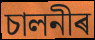
চালনীৰ